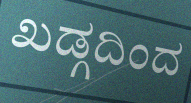
ಖಡ್ಗದಿಂದ